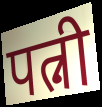
पत्नी